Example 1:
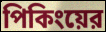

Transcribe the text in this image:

পিকিংয়ের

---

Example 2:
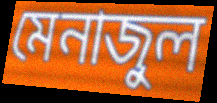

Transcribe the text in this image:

মেনাজুল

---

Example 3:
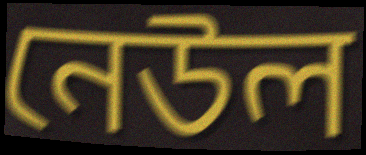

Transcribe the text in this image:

নেউল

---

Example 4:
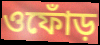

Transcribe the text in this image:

ওফোঁড়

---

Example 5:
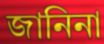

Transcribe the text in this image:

জানিনা